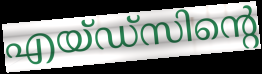
എയ്ഡ്സിന്റെ